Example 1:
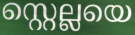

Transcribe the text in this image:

സ്റ്റെല്ലയെ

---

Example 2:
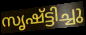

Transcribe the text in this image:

സൃഷ്ട്ടിച്ചു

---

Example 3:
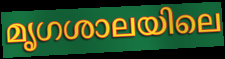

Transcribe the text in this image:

മൃഗശാലയിലെ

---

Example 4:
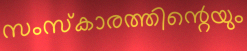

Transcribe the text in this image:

സംസ്കാരത്തിന്റെയും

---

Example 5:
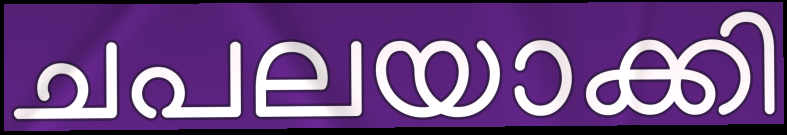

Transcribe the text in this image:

ചപലയാക്കി